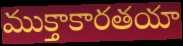
ముక్తాకారతయా